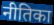
नीतिका